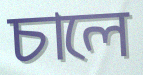
চালে